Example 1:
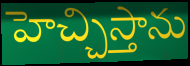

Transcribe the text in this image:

హెచ్చిస్తాను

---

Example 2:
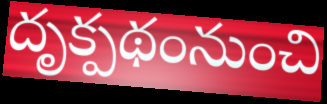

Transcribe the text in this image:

దృక్పథంనుంచి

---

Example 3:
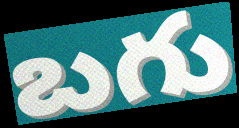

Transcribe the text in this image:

బగు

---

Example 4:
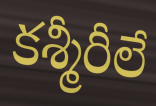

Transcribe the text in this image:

కశ్మీరీలే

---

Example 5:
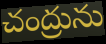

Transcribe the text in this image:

చంద్రును